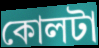
কোলটা